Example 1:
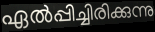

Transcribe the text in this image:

ഏൽപ്പിച്ചിരിക്കുന്നു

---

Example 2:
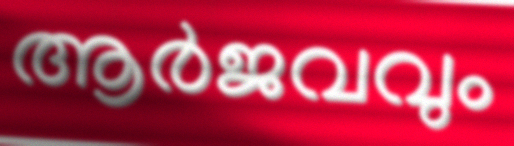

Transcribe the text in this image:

ആർജവവും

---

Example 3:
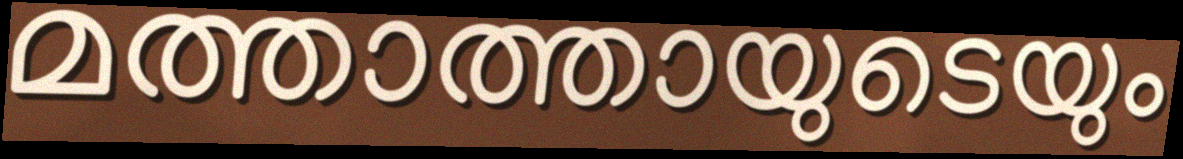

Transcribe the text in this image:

മത്താത്തായുടെയും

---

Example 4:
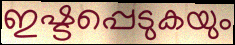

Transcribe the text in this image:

ഇഷ്ടപ്പെടുകയും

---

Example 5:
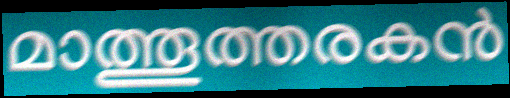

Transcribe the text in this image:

മാത്തൂത്തരകൻ